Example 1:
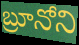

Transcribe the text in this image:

బ్రూనోని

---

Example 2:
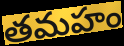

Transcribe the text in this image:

తమహం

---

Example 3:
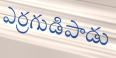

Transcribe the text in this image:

ఎర్రగుడిపాడు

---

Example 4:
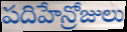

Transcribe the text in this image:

పదిహేన్రోజులు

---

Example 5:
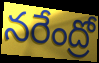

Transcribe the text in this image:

నరేంద్రో